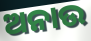
ଅନାଉ